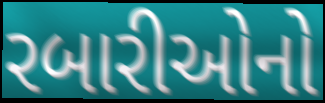
રબારીઓનો